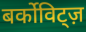
बर्कोविट्ज़